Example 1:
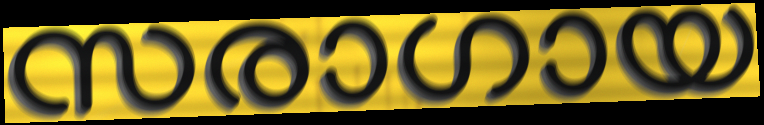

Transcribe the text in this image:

സരാഗായ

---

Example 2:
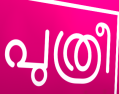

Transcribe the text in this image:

പുത്രീ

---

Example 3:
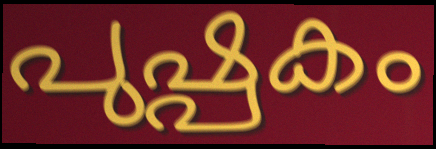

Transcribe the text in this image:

പുഷ്പകം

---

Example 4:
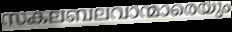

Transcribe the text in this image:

സകലബലവാന്മാരെയും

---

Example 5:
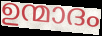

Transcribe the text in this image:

ഉന്മാദം